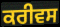
ਕਰੀਵਸ